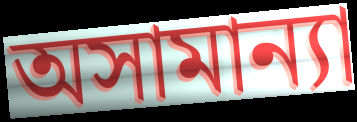
অসামান্যা